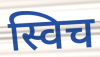
स्विच